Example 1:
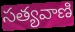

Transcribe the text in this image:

సత్యవాణి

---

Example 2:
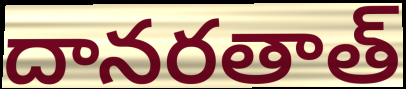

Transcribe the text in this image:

దానరతాత్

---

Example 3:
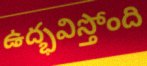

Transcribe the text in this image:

ఉద్భవిస్తోంది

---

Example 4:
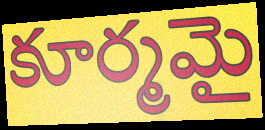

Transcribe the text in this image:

కూర్మమై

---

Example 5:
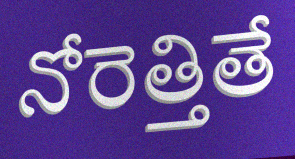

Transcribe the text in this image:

నోరెత్తితే